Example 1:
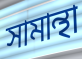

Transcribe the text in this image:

সামান্থা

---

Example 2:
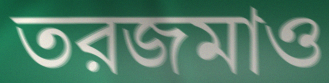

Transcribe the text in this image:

তরজমাও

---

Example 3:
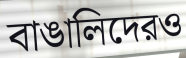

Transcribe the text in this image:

বাঙালিদেরও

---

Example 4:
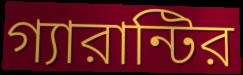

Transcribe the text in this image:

গ্যারান্টির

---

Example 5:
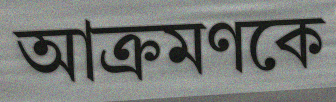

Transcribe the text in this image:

আক্রমণকে